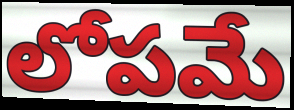
లోపమే